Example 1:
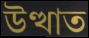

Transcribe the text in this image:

উত্থাত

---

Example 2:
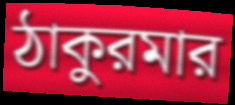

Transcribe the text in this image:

ঠাকুরমার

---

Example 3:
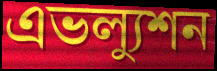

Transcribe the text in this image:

এভল্যুশন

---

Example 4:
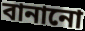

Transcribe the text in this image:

বানানো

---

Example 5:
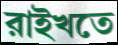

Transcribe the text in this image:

রাইখতে